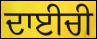
ਦਾਈਚੀ